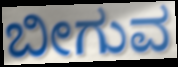
ಬೀಗುವ